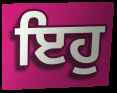
ਇਹੁ